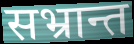
सभ्रान्त